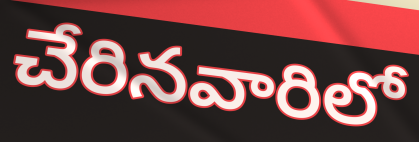
చేరినవారిలో